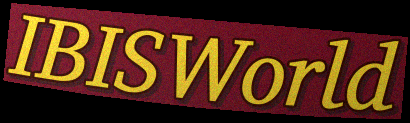
IBISWorld